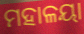
ମହାଳୟା